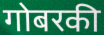
गोबरकी